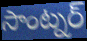
సాంట్నర్